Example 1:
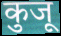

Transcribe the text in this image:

कुजू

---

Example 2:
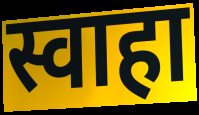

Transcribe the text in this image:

स्वाहा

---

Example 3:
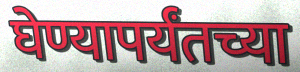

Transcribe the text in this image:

घेण्यापर्यंतच्या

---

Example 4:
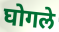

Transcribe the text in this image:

घोगले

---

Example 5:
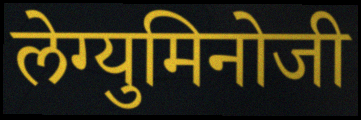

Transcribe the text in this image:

लेग्युमिनोजी